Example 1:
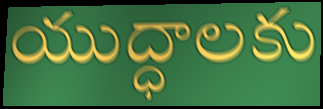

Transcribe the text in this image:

యుద్ధాలకు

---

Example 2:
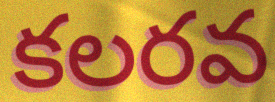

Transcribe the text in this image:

కలరవ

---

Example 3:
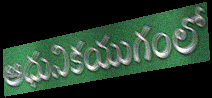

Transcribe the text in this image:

ఆధునికయుగంలో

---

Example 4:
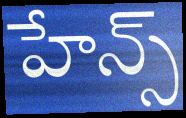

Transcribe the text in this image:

హేన్స్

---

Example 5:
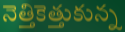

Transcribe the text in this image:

నెత్తికెత్తుకున్న